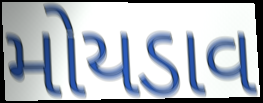
મોયડાવ